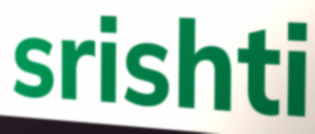
srishti